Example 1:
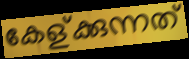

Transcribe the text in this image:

കേള്ക്കുന്നത്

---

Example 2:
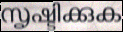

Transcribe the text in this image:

സൃഷ്ടിക്കുക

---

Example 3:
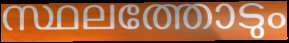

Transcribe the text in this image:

സ്ഥലത്തോടും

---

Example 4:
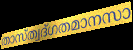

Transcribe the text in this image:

താസ്ത്വദ്ഗതമാനസാ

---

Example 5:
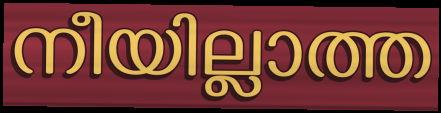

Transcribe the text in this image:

നീയില്ലാത്ത